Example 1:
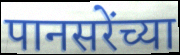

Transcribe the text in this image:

पानसरेंच्या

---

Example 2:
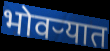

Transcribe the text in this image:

भोवऱ्यात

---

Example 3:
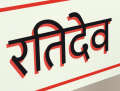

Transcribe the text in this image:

रतिदेव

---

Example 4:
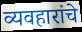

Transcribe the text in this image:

व्यवहारांचे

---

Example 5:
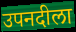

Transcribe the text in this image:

उपनदीला